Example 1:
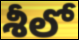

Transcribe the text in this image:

శీలో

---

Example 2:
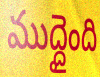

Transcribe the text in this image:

ముద్దైంది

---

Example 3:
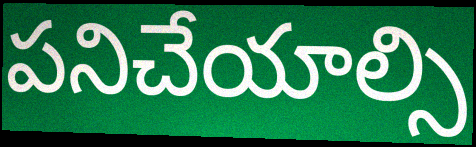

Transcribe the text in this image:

పనిచేయాల్సి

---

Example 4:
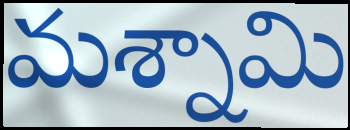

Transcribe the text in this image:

మశ్నామి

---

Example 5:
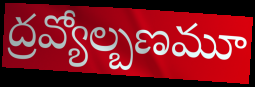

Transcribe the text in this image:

ద్రవ్యోల్బణమూ